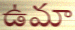
ఉమా